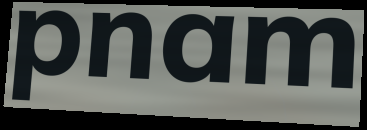
pnam